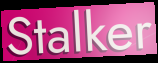
Stalker